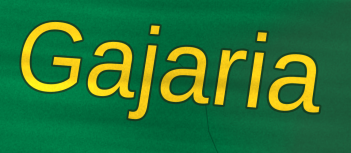
Gajaria